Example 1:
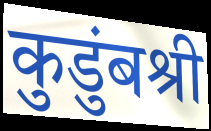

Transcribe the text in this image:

कुडुंबश्री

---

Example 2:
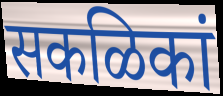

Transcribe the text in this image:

सकळिकां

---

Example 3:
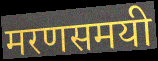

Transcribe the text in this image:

मरणसमयी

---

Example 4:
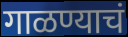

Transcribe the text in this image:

गाळण्याचं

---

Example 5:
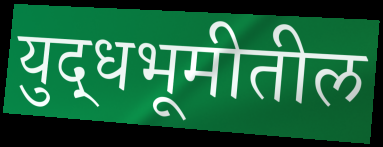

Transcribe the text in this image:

युद्धभूमीतील